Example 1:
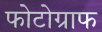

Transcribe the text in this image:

फोटोग्राफ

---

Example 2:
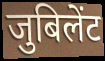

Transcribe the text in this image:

जुबिलेंट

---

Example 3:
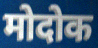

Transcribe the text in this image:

मोदोक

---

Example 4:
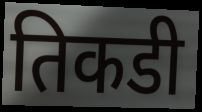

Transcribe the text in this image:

तिकडी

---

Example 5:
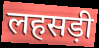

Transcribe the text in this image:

लहसड़ी